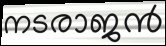
നടരാജൻ